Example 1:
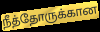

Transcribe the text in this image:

நீத்தோருக்கான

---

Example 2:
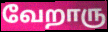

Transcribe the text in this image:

வேறாரு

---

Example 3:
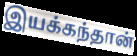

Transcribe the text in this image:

இயக்கந்தான்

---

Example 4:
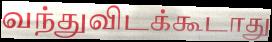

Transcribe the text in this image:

வந்துவிடக்கூடாது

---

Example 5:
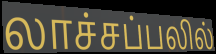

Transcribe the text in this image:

லாச்சப்பலில்